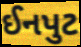
ઈનપુટ